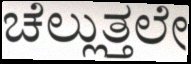
ಚೆಲ್ಲುತ್ತಲೇ